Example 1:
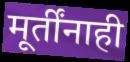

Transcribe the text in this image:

मूर्तींनाही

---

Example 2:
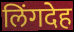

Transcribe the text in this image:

लिंगदेह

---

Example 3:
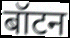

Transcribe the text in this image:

बॉटन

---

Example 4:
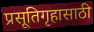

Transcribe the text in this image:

प्रसूतिगृहासाठी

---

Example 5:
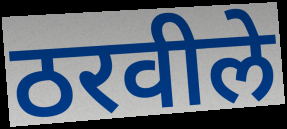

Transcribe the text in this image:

ठरवीले